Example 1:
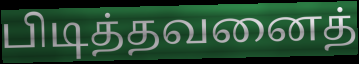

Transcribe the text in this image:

பிடித்தவனைத்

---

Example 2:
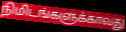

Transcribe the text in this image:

நிமிடங்களுக்காவது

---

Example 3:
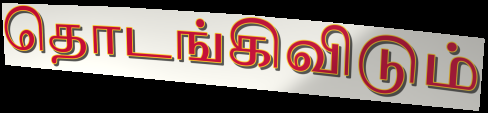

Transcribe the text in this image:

தொடங்கிவிடும்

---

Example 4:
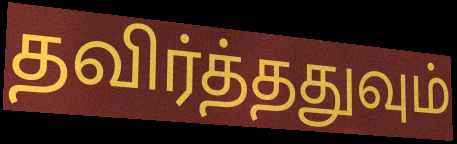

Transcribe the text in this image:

தவிர்த்ததுவும்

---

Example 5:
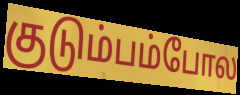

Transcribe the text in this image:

குடும்பம்போல